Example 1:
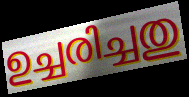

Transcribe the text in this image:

ഉച്ചരിച്ചതു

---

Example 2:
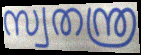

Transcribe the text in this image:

സ്വതന്ത്ര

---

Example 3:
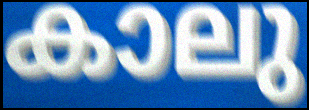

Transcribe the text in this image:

കാലു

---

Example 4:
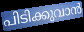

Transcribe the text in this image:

പിടിക്കുവാൻ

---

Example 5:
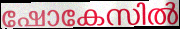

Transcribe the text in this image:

ഷോകേസിൽ